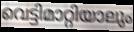
വെട്ടിമാറ്റിയാലും